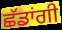
ਛੱਡਾਂਗੀ